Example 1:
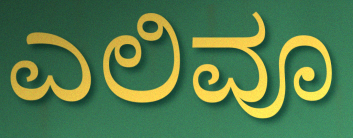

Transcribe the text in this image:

ಎಲಿವೂ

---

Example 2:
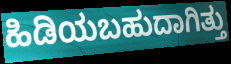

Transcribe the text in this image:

ಹಿಡಿಯಬಹುದಾಗಿತ್ತು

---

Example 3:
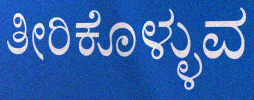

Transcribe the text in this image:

ತೀರಿಕೊಳ್ಳುವ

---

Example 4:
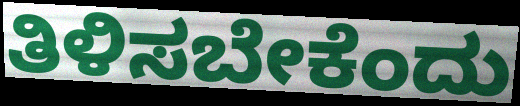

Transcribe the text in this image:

ತಿಳಿಸಬೇಕೆಂದು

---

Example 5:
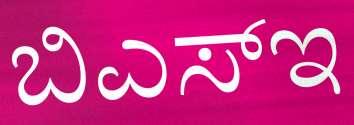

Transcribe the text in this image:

ಬಿಎಸ್ಇ